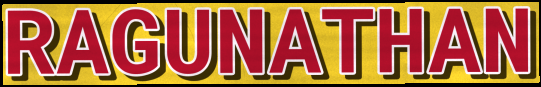
RAGUNATHAN